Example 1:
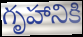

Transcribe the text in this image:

గృహానికి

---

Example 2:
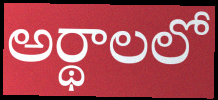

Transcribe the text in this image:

అర్థాలలో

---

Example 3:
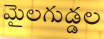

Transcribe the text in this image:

మైలగుడ్డల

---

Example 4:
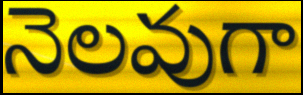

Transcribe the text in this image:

నెలవుగా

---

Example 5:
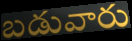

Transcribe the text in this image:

బడువారు